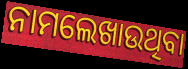
ନାମଲେଖାଉଥିବା